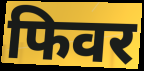
फिवर